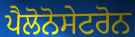
ਪੈਲੋਨੋਸੇਟਰੋਨ